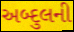
અબ્દુલની